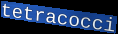
tetracocci